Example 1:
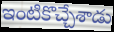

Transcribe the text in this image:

ఇంటికొచ్చేశాడు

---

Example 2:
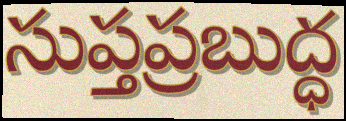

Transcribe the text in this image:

సుప్తప్రబుద్ధ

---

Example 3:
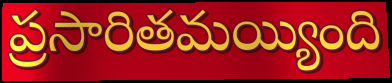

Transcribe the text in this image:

ప్రసారితమయ్యింది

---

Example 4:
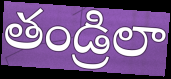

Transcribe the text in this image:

తండ్రిలా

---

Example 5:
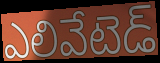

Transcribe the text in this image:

ఎలివేటెడ్